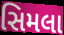
સિમલા